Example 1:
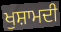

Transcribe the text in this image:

ਖੁਸ਼ਾਮਦੀ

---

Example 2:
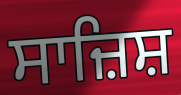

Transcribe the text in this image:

ਸਾਜ਼ਿਸ਼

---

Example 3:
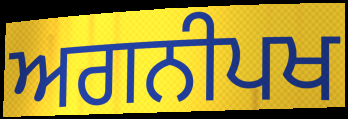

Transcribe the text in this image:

ਅਗਨੀਪਖ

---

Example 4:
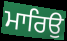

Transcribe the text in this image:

ਮਾਰਿਉ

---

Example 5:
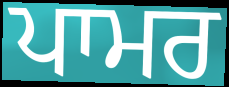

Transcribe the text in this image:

ਪਾਮਰ